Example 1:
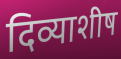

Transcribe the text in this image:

दिव्याशीष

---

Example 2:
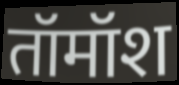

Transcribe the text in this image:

तॉमॉश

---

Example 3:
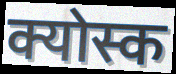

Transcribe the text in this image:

क्योस्क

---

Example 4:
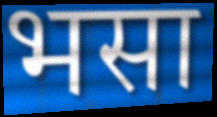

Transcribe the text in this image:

भसा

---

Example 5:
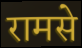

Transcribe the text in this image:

रामसे